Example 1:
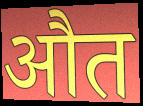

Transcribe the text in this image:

औत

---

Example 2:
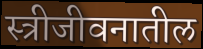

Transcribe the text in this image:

स्त्रीजीवनातील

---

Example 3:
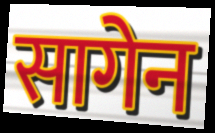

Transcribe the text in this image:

सागेन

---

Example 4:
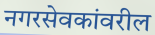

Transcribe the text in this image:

नगरसेवकांवरील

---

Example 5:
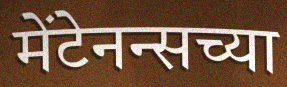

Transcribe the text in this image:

मेंटेनन्सच्या